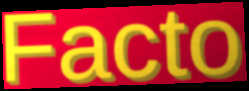
Facto